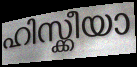
ഹിസ്ക്കീയാ